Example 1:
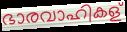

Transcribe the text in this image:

ഭാരവാഹികള്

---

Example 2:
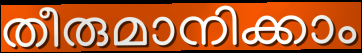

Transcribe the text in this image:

തീരുമാനിക്കാം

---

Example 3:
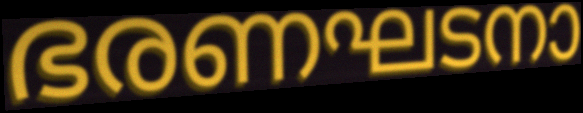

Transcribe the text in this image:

ഭരണഘടനാ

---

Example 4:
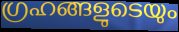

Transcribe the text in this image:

ഗ്രഹങ്ങളുടെയും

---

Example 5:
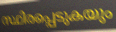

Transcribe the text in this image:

സ്ഥിരപ്പെടുകയും